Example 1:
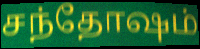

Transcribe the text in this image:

சந்தோஷம்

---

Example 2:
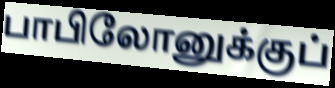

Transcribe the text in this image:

பாபிலோனுக்குப்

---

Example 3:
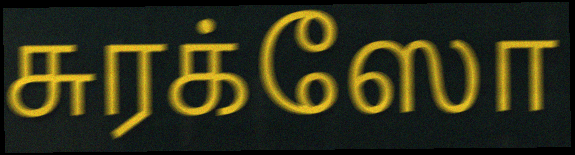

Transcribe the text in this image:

சுரக்ஸோ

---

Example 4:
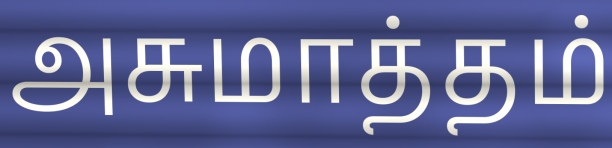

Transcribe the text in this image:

அசுமாத்தம்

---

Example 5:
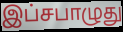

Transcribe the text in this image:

இப்சபாழுது